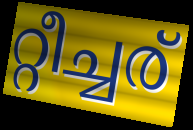
റ്റീച്ചര്